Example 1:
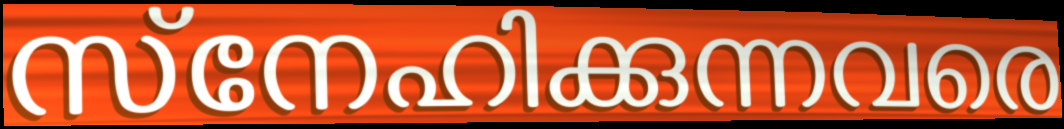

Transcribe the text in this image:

സ്‌നേഹിക്കുന്നവരെ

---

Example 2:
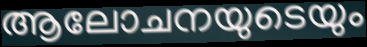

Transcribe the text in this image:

ആലോചനയുടെയും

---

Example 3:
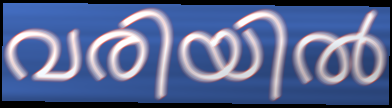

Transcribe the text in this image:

വരിയിൽ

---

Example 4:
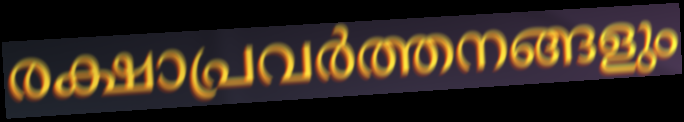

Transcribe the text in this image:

രക്ഷാപ്രവർത്തനങ്ങളും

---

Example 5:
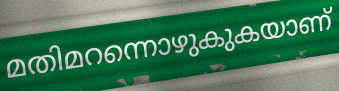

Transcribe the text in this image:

മതിമറന്നൊഴുകുകയാണ്